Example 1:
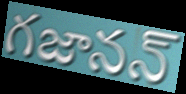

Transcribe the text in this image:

గజానన్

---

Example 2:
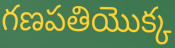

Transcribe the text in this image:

గణపతియొక్క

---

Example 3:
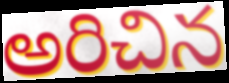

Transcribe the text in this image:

అరిచిన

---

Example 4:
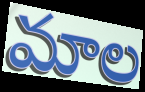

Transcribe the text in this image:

మాల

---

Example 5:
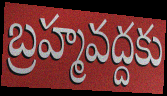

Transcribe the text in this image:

బ్రహ్మవద్దకు